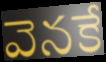
వెనకే